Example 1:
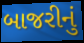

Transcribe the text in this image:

બાજરીનું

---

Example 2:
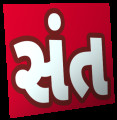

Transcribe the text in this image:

સંત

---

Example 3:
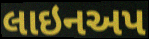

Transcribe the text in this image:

લાઇનઅપ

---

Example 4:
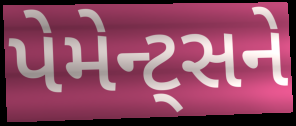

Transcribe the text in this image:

પેમેન્ટ્સને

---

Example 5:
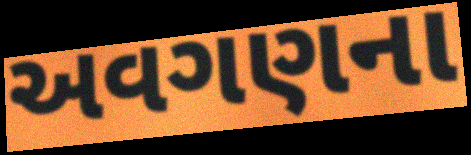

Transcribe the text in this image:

અવગણના